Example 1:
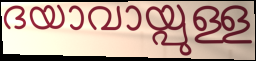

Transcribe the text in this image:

ദയാവായ്പുള്ള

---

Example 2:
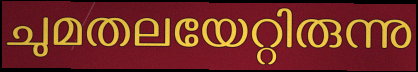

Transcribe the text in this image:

ചുമതലയേറ്റിരുന്നു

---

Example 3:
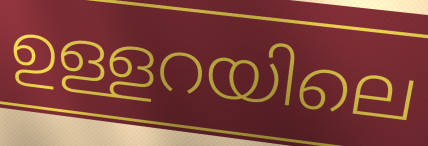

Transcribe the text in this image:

ഉള്ളറയിലെ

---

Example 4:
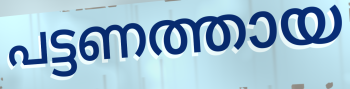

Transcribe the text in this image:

പട്ടണത്തായ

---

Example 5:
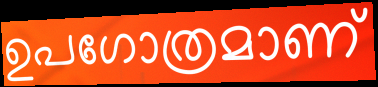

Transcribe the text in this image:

ഉപഗോത്രമാണ്